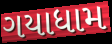
ગયાધામ